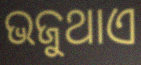
ଭଜୁଥାଏ